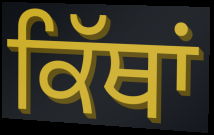
ਕਿੱਥਾਂ